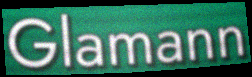
Glamann